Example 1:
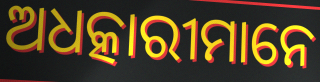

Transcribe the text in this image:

ଅଧତ୍କାରୀମାନେ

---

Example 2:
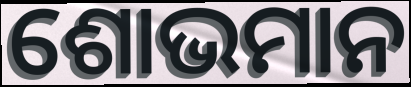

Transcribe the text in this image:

ଶୋଭମାନ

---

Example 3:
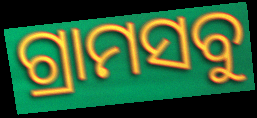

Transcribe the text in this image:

ଗ୍ରାମସବୁ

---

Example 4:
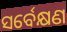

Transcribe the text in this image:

ସର୍ବେକ୍ଷଣ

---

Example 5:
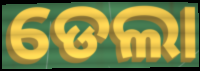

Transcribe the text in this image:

ଡେଲା